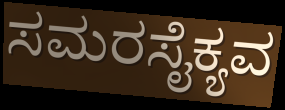
ಸಮರಸೈಕ್ಯವ